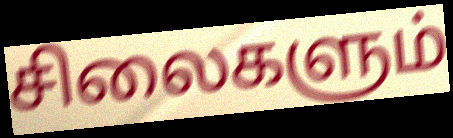
சிலைகளும்